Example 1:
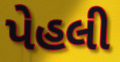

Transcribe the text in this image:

પેહલી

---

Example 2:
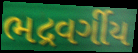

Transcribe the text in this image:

ભદ્રવર્ગીય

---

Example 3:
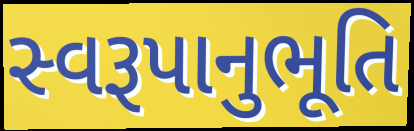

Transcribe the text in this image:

સ્વરૂપાનુભૂતિ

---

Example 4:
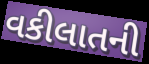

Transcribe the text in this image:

વકીલાતની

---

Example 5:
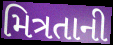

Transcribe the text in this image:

મિત્રતાની